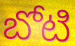
బోటి